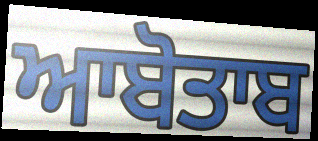
ਆਬੋਤਾਬ